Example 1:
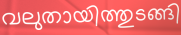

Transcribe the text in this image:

വലുതായിത്തുടങ്ങി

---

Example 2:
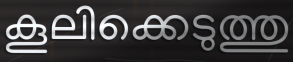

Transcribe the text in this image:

കൂലിക്കെടുത്തു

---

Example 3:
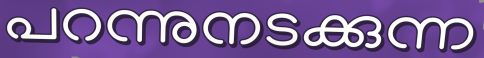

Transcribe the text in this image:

പറന്നുനടക്കുന്ന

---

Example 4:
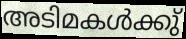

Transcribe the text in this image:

അടിമകൾക്കു്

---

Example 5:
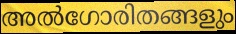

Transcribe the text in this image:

അൽഗോരിതങ്ങളും